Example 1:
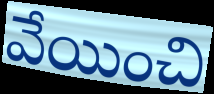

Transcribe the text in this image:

వేయించి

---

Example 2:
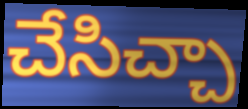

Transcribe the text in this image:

చేసిచ్చా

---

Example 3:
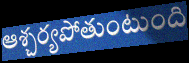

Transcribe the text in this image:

ఆశ్చర్యపోతుంటుంది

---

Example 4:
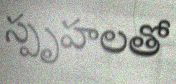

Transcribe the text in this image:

స్పృహలతో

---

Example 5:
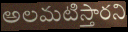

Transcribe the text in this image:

అలమటిస్తారని